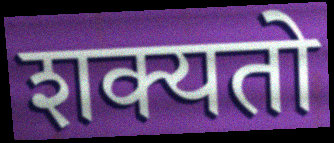
शक्यतो